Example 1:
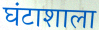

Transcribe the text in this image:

घंटाशाला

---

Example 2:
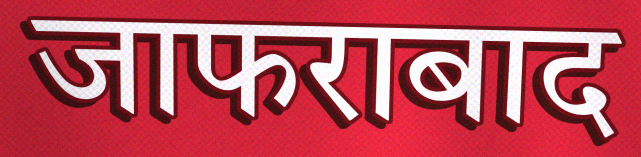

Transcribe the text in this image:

जाफराबाद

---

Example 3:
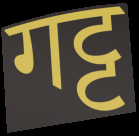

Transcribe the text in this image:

गट्ट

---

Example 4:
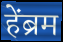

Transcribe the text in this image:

हेंब्रम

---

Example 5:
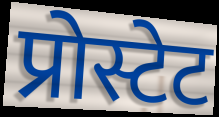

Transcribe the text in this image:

प्रोस्टेट